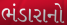
ભંડારાનો